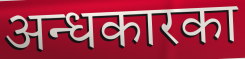
अन्धकारका